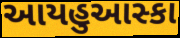
આયહુઆસ્કા